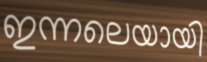
ഇന്നലെയായി